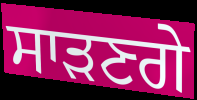
ਸਾੜਣਗੇ